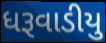
ધરૂવાડીયુ